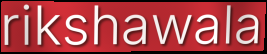
rikshawala